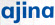
ajina